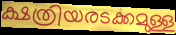
ക്ഷത്രിയരടക്കമുള്ള